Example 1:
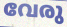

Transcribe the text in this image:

വേരു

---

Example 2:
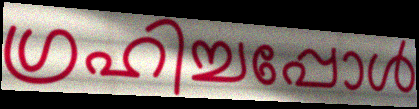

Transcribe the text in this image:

ഗ്രഹിച്ചപ്പോൾ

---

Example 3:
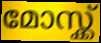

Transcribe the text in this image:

മോസ്ക്ക്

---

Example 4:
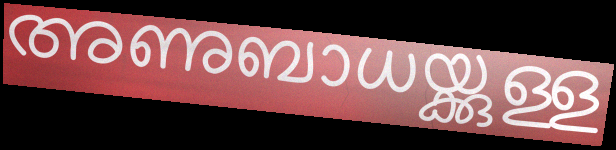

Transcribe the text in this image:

അണുബാധയ്ക്കുള്ള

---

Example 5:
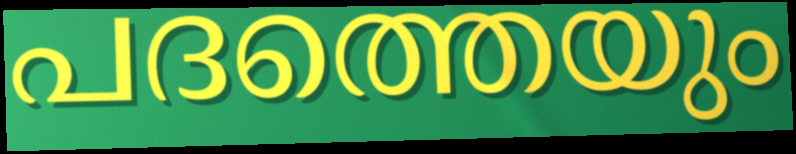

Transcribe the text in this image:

പദത്തെയും